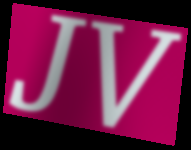
JV